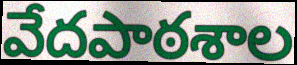
వేదపాఠశాల